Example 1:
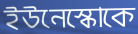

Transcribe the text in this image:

ইউনেস্কোকে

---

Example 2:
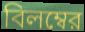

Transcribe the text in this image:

বিলম্বের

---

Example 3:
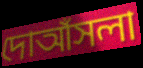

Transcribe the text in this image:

দোআঁসলা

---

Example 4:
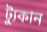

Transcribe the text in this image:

ট্যুকান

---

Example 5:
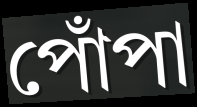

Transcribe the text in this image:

পোঁপা